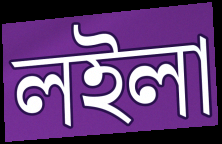
লইলা